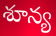
శూన్య